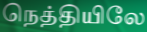
நெத்தியிலே